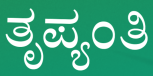
ತೃಪ್ಯಂತಿ